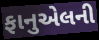
ફાનુએલની